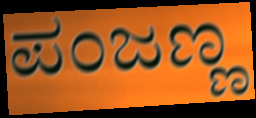
ಪಂಜಣ್ಣ